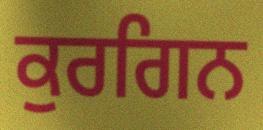
ਕੁਰਗਿਨ